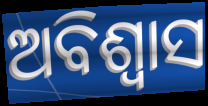
ଅବିଶ୍ବାସ